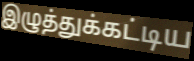
இழுத்துக்கட்டிய